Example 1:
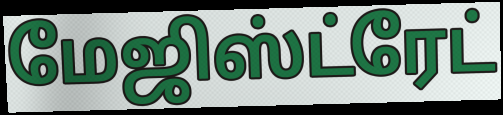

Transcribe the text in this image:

மேஜிஸ்ட்ரேட்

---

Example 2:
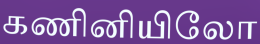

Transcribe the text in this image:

கணினியிலோ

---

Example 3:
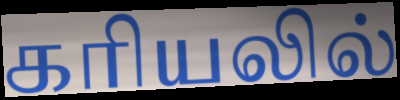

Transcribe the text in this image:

கரியலில்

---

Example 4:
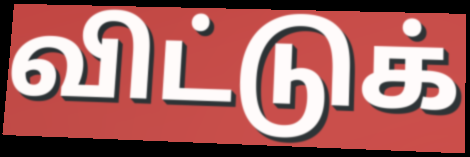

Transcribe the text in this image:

விட்டுக்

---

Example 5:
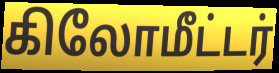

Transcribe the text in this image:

கிலோமீட்டர்